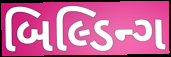
બિલ્ડિન્ગ